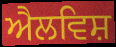
ਐਲਵਿਸ਼